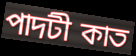
পাদটীকাত